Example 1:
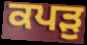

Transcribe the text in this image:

ਕਪੜੁ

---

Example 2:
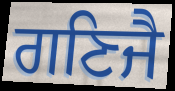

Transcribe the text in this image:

ਗਣਿਜੈ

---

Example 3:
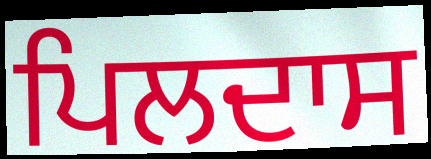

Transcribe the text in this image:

ਪਿਲਦਾਸ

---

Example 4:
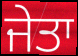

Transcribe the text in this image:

ਜੇਤਾ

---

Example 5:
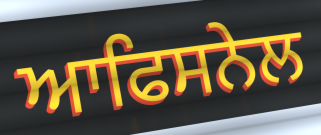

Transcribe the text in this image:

ਆਫਿਸਨੇਲ